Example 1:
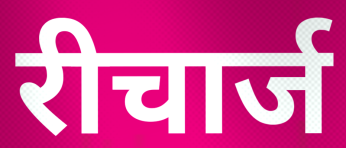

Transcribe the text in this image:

रीचार्ज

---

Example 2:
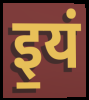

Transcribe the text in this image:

इ॒यं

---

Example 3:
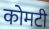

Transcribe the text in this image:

कोमटी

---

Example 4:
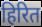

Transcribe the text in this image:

हिरित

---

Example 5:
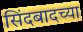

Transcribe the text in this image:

सिंदबादच्या